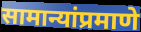
सामान्यांप्रमाणे